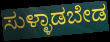
ಸುಳ್ಳಾಡಬೇಡ